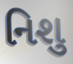
નિશુ